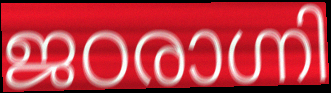
ജഠരാഗ്നി